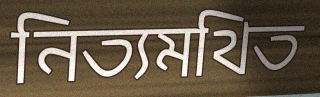
নিত্যমথিত